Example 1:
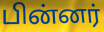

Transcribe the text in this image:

பின்னர்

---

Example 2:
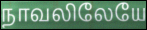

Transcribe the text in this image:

நாவலிலேயே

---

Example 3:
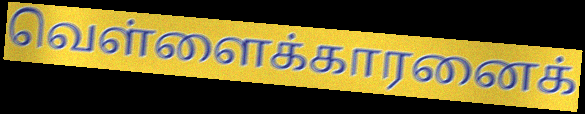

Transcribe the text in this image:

வெள்ளைக்காரனைக்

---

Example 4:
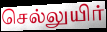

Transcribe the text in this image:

செல்லுயிர்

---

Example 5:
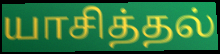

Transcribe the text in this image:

யாசித்தல்